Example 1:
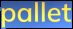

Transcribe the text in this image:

pallet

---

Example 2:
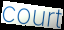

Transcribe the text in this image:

court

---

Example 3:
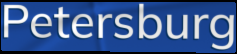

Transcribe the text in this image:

Petersburg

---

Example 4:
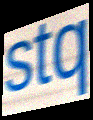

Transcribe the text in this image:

stq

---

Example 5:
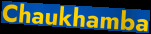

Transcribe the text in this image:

Chaukhamba